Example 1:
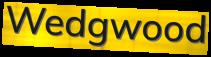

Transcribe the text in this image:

Wedgwood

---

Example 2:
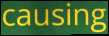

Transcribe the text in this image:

causing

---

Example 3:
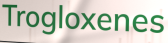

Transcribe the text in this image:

Trogloxenes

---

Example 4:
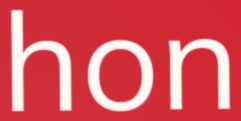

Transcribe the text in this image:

hon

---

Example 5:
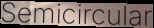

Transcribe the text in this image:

Semicircular